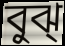
বুঝ্